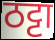
ठट्टा